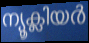
ന്യൂക്ലിയർ